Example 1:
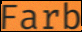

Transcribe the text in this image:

Farb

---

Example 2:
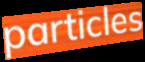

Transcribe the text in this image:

particles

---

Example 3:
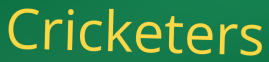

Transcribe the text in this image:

Cricketers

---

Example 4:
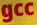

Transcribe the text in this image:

gcc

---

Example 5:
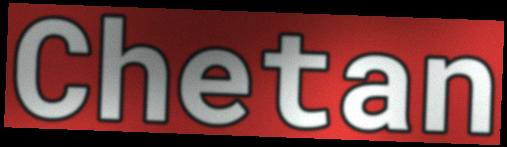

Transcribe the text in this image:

Chetan